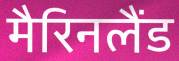
मैरिनलैंड